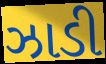
ઝાડી